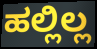
ಹಲ್ಲಿಲ್ಲ